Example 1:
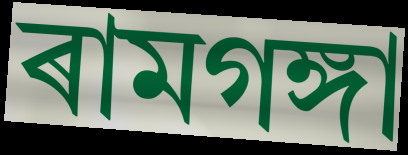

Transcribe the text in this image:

ৰামগঙ্গা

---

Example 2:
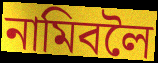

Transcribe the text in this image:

নামিবলৈ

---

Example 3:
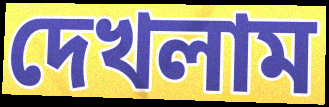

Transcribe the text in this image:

দেখলাম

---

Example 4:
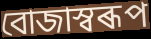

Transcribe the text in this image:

বোজাস্বৰূপ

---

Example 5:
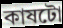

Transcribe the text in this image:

কাষটো